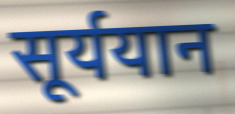
सूर्ययान